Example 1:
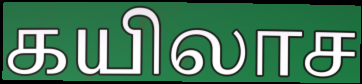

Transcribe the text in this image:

கயிலாச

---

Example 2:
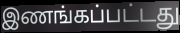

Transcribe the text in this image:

இணங்கப்பட்டது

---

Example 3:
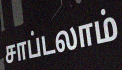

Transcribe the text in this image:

சாப்டலாம்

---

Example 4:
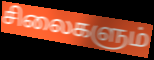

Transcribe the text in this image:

சிலைகளும்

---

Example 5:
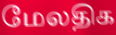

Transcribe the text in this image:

மேலதிக